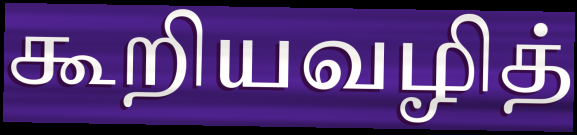
கூறியவழித்